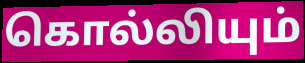
கொல்லியும்